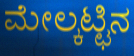
ಮೇಲ್ಕಟ್ಟಿನ